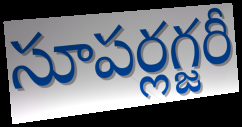
సూపర్లగ్జరీ